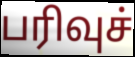
பரிவுச்